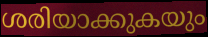
ശരിയാക്കുകയും